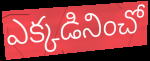
ఎక్కడినించో